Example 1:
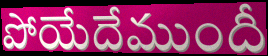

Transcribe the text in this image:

పోయేదేముందీ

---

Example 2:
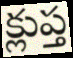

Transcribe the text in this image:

క్లుప్త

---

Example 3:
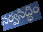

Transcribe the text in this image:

సర్వసిద్ధిం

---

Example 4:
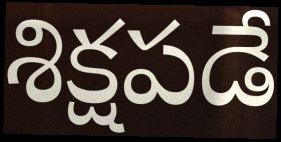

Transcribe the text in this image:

శిక్షపడే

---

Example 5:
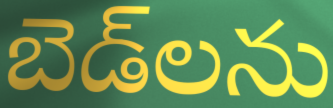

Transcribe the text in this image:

బెడ్‌లను